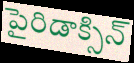
పైరిడాక్సిన్